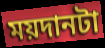
ময়দানটা